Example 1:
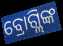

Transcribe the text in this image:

ବ୍ରୋଗ୍ଲିଙ୍କ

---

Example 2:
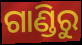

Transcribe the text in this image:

ଗାଣ୍ଡିରୁ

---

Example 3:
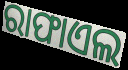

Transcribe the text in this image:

ରାଫାଏଲ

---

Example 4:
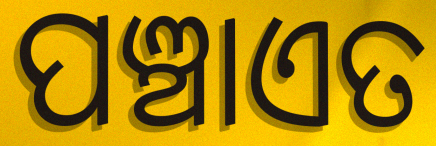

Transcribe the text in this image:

ପଞ୍ଚାଏତ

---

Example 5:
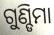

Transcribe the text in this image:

ଗୁଣ୍ଡିମା